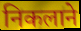
निकलाने